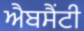
ਐਬਸੈਂਟੀ